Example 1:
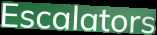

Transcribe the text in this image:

Escalators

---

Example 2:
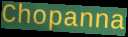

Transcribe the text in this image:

Chopanna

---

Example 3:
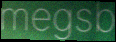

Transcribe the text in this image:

megsb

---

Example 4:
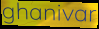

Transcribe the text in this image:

ghanivar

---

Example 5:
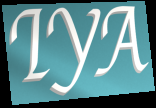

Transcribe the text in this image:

IYA